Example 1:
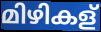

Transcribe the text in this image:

മിഴികള്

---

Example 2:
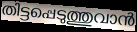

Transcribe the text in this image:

തിട്ടപ്പെടുത്തുവാൻ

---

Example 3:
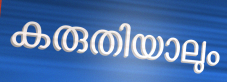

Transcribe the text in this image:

കരുതിയാലും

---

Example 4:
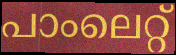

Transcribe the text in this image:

പാംലെറ്റ്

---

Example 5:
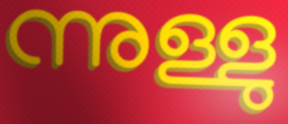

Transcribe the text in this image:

ന്നുള്ളു